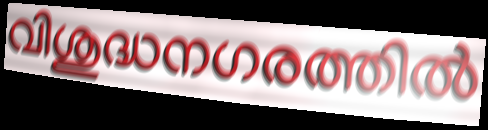
വിശുദ്ധനഗരത്തിൽ